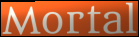
Mortal